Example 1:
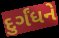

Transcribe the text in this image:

દુર્ગંધને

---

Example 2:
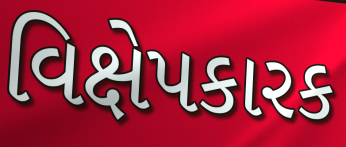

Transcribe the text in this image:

વિક્ષેપકારક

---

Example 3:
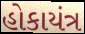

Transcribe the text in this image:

હોકાયંત્ર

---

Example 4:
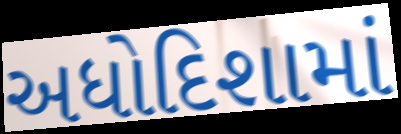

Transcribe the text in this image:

અધોદિશામાં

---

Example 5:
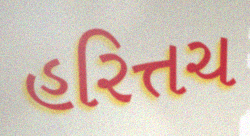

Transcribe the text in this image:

હરિત્તચ